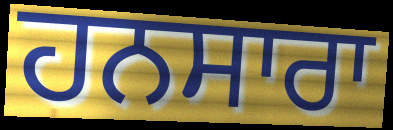
ਹਨਸਾਰਾ